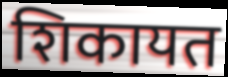
शिकायत